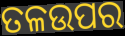
ତଳଉପର